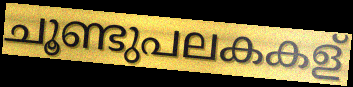
ചൂണ്ടുപലകകള്